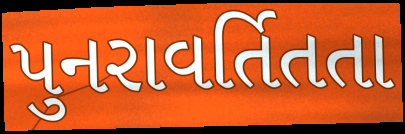
પુનરાવર્તિતતા